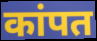
कांपत